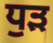
ਧੁੜ